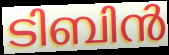
ടിബിൻ